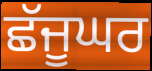
ਛੱਜੂਘਰ